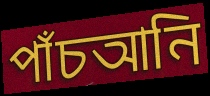
পাঁচআনি